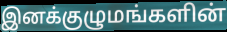
இனக்குழுமங்களின்